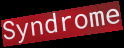
Syndrome